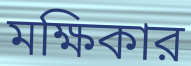
মক্ষিকার